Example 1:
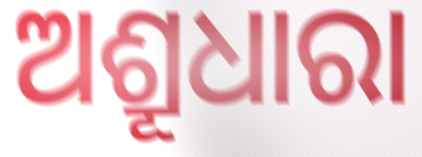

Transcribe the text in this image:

ଅଶ୍ରୂଧାରା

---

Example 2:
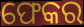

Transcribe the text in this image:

ଫେକର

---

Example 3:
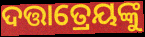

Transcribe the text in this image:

ଦତ୍ତାତ୍ରେୟଙ୍କୁ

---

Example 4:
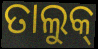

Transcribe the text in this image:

ତାଲୁକ୍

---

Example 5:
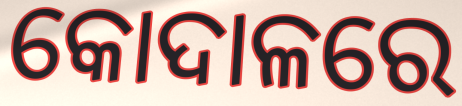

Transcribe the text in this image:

କୋଦାଳରେ